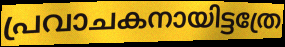
പ്രവാചകനായിട്ടത്രേ